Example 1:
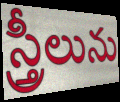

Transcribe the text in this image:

స్త్రీలును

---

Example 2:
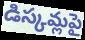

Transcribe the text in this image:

డిస్కమ్లపై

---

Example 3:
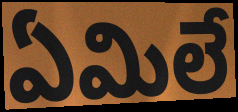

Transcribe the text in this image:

ఏమిలే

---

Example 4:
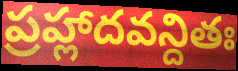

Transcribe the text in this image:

ప్రహ్లాదవన్దితః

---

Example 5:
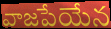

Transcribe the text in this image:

వాజపేయేన